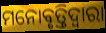
ମନୋବୃତ୍ତିଦ୍ଵାରା